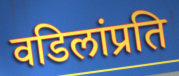
वडिलांप्रति